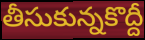
తీసుకున్నకొద్దీ